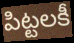
పిట్టలకీ